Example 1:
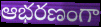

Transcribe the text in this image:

ఆభరణంగా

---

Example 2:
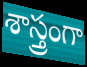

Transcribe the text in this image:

శాస్త్రంగా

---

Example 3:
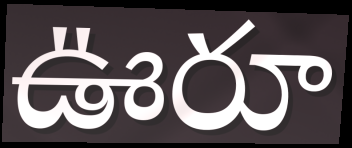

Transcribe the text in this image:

ఊరూ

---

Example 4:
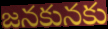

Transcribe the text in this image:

జనకునకు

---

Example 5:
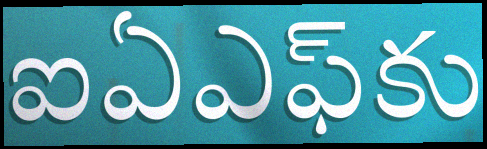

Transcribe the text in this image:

ఐఏఎఫ్‌కు